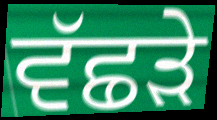
ਵੱਛੜੇ